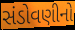
સંડોવણીનો